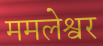
ममलेश्वर